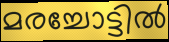
മരച്ചോട്ടിൽ